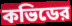
কভিডের